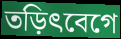
তড়িৎবেগে